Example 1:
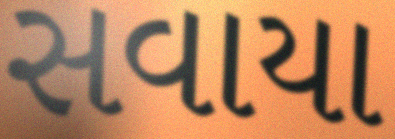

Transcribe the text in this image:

સવાયા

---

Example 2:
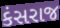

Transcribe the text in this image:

કંસરાજ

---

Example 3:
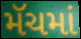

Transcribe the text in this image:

મૅચમાં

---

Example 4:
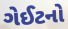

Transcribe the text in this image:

ગેઈટનો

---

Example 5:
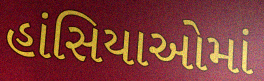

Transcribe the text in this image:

હાંસિયાઓમાં